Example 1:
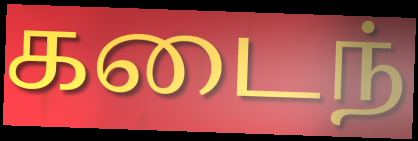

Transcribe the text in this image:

கடைந்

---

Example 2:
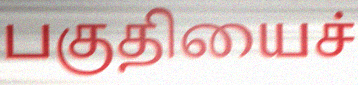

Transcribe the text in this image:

பகுதியைச்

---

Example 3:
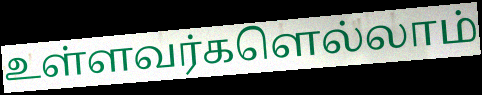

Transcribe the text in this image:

உள்ளவர்களெல்லாம்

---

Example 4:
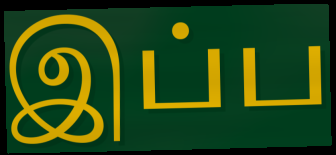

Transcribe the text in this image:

இப்ப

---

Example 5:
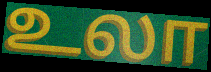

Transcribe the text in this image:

உலா